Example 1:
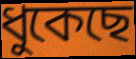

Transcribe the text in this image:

ধুকেছে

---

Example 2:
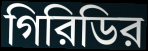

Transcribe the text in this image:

গিরিডির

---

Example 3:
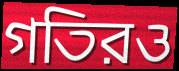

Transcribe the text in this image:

গতিরও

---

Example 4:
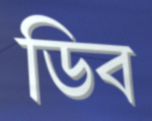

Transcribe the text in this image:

ডিব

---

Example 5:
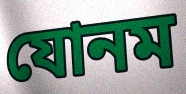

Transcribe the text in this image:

যোনম